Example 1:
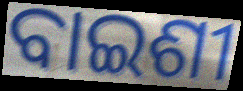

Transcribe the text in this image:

ବାଇଶୀ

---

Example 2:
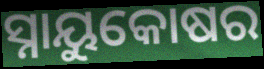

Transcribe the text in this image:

ସ୍ନାୟୁକୋଷର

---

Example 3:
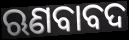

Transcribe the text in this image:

ଋଣବାବଦ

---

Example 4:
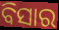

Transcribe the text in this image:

ବିସାର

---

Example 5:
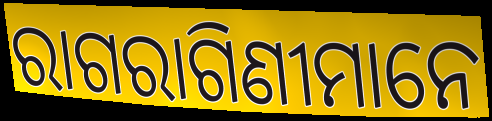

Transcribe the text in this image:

ରାଗରାଗିଣୀମାନେ